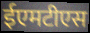
ईएमटीएस